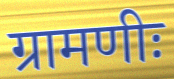
ग्रामणीः